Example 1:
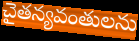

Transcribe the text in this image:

చైతన్యవంతులను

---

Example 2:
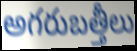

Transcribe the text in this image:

అగరుబత్తీలు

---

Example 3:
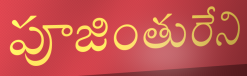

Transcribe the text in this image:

పూజింతురేని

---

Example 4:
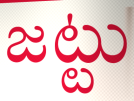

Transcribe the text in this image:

జట్టు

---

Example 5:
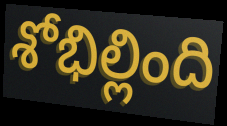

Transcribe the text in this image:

శోభిల్లింది